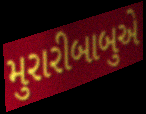
મુરારીબાબુએ